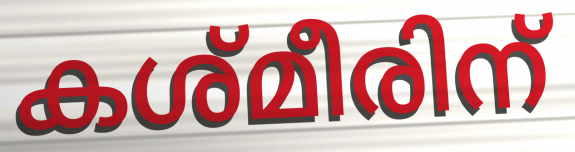
കശ്മീരിന്